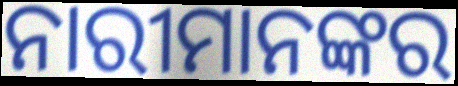
ନାରୀମାନଙ୍କର